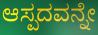
ಆಸ್ಪದವನ್ನೇ